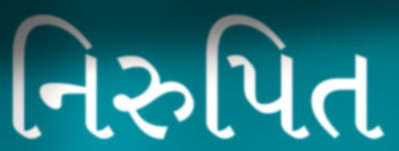
નિરુપિત